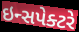
ઇન્સપેક્ટરે